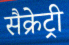
सैक्रेट्री